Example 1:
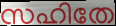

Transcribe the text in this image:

സഹിതേ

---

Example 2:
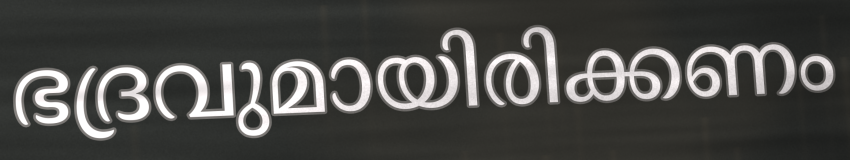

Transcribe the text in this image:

ഭദ്രവുമായിരിക്കണം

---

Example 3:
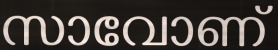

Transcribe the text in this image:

സാവോണ്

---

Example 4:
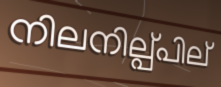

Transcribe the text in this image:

നിലനില്പ്പില്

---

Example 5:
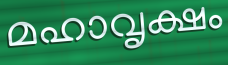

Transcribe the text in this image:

മഹാവൃക്ഷം